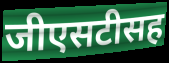
जीएसटीसह